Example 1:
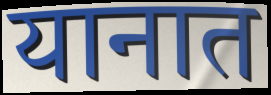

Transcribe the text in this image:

यानात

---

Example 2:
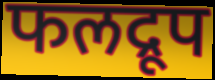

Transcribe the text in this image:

फलद्रूप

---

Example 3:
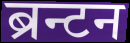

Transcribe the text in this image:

ब्रन्टन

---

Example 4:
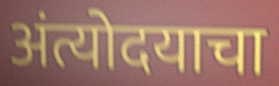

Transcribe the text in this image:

अंत्योदयाचा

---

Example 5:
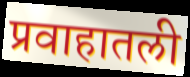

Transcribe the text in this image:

प्रवाहातली